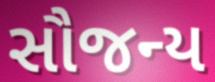
સૌજન્ય